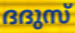
ദദുസ്